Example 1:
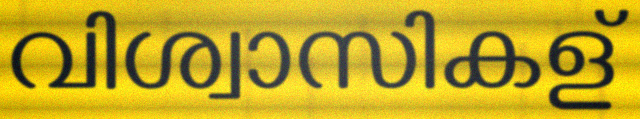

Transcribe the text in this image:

വിശ്വാസികള്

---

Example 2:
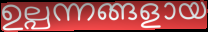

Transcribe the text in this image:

ഉല്പന്നങ്ങളായ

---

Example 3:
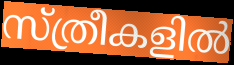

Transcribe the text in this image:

സ്ത്രീകളിൽ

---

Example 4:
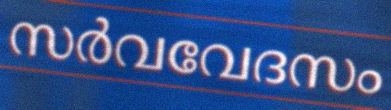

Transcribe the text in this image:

സർവവേദസം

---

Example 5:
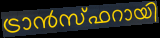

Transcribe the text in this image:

ട്രാൻസ്ഫറായി